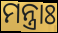
ମନ୍ତ୍ରାଃ